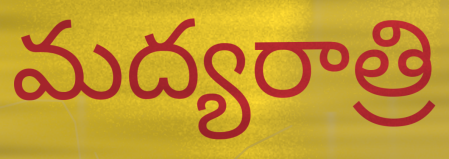
మద్యరాత్రి